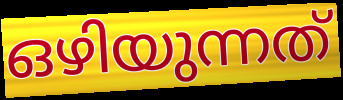
ഒഴിയുന്നത്